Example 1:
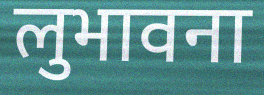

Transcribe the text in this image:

लुभावना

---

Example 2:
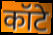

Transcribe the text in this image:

कॉटे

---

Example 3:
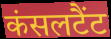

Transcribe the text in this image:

कंसलटैंट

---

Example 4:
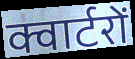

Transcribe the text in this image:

क्वार्टरों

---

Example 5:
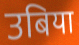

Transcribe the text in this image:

उबिया